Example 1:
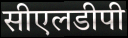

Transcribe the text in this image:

सीएलडीपी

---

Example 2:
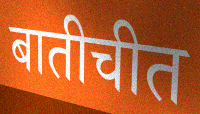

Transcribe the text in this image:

बातीचीत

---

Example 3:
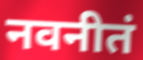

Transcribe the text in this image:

नवनीतं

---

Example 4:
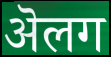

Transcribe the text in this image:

ऄलग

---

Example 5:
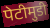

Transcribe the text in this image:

पेटीमुडी